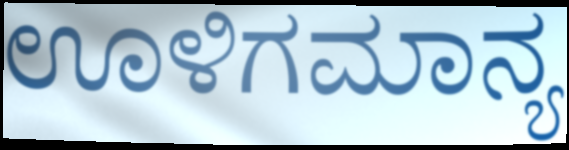
ಊಳಿಗಮಾನ್ಯ